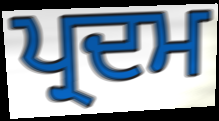
ਪ੍ਰਦਮ